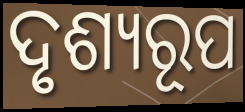
ଦୃଶ୍ୟରୂପ